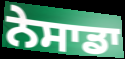
ਨੇਸਾਡਾ